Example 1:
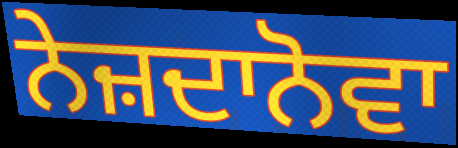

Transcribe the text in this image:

ਨੇਜ਼ਦਾਨੋਵਾ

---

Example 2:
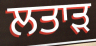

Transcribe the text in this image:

ਲਤਾੜ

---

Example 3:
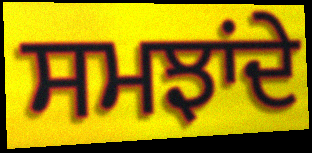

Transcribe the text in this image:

ਸਮਝਾਂਦੇ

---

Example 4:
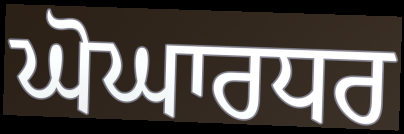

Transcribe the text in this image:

ਘੋਘਾਰਧਰ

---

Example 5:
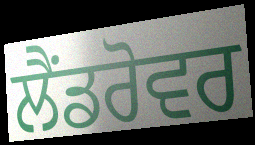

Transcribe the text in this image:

ਲੈਂਡਰੋਵਰ